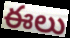
ఈలు